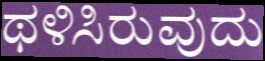
ಥಳಿಸಿರುವುದು